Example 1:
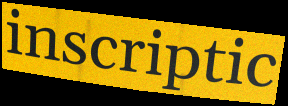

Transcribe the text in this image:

inscriptic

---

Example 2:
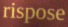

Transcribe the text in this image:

rispose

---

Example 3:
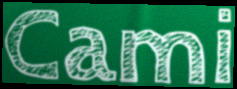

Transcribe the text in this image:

Cami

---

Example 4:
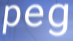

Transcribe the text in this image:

peg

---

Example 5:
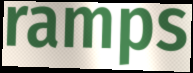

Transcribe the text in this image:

ramps